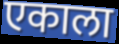
एकाला